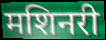
मशिनरी